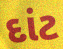
દાંટ